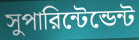
সুপারিন্টেন্ডেন্ট